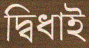
দ্বিধাই